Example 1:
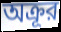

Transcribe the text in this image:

অক্রূর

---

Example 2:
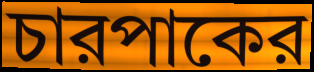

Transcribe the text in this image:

চারপাকের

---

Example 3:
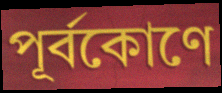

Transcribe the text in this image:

পূর্বকোণে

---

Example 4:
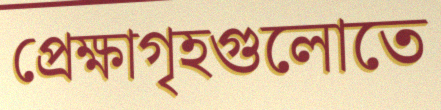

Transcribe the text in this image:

প্রেক্ষাগৃহগুলোতে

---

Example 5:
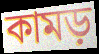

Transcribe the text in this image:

কামড়